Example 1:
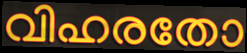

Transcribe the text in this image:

വിഹരതോ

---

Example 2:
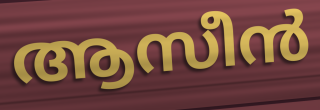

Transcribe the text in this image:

ആസീൻ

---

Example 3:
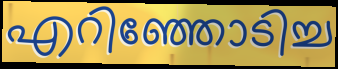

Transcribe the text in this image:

എറിഞ്ഞോടിച്ച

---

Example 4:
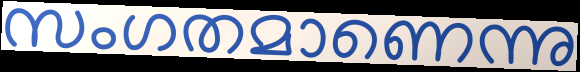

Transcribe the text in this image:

സംഗതമാണെന്നു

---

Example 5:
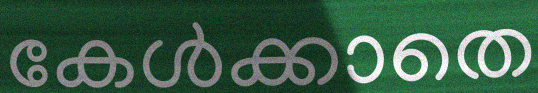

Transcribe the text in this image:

കേൾക്കാതെ